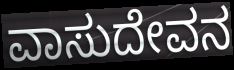
ವಾಸುದೇವನ